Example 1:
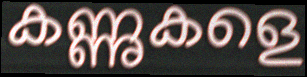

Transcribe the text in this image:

കണ്ണുകളെ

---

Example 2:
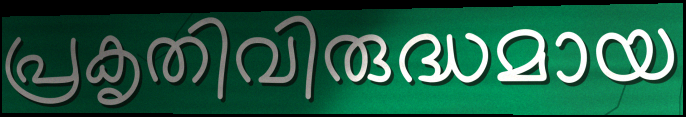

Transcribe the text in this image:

പ്രകൃതിവിരുദ്ധമായ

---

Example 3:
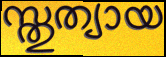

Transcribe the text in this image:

സ്തുത്യായ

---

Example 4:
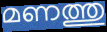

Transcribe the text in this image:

മണത്തു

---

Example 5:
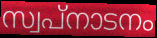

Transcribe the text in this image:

സ്വപ്നാടനം